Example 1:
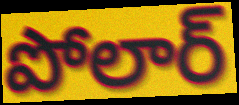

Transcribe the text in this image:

పోలార్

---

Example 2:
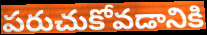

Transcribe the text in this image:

పరుచుకోవడానికి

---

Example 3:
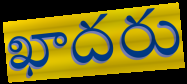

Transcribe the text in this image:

ఖాదరు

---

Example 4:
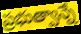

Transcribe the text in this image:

ప్రభుత్వాన్నే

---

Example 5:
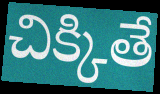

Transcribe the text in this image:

చిక్కితే